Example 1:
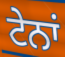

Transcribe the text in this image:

ਟੇਨਾਂ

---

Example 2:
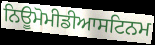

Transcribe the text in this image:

ਨਿਊਮੋਮੀਡੀਆਸਟਿਨਮ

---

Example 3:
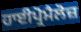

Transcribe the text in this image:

ਹਾਈਪ੍ਰੋਮੈਲੋਜ਼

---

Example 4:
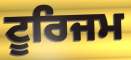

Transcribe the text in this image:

ਟੂਰਿਜਮ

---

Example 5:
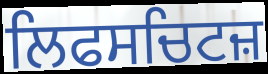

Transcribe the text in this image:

ਲਿਫਸਚਿਟਜ਼